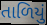
તાળિયું